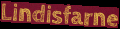
Lindisfarne